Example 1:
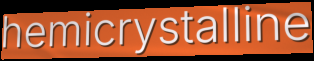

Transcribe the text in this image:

hemicrystalline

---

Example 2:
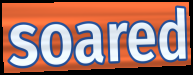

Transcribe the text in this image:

soared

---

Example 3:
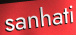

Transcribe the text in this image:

sanhati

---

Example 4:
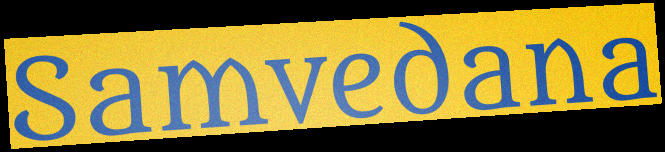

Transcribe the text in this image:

Samvedana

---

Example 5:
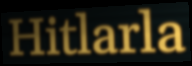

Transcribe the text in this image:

Hitlarla